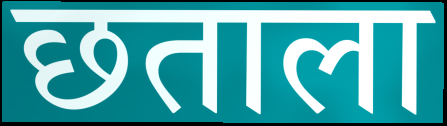
छताला